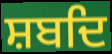
ਸ਼ਬਦਿ